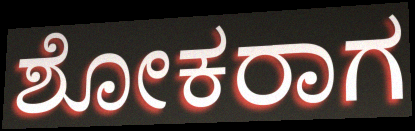
ಶೋಕರಾಗ